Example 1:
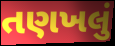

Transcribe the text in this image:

તણખલું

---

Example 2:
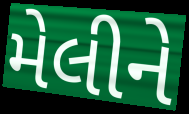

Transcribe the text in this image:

મેલીને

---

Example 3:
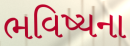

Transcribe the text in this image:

ભવિષ્યના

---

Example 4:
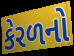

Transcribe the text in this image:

કેરળનો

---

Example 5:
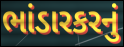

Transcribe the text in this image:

ભાંડારકરનું